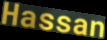
Hassan